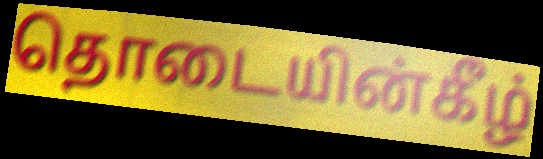
தொடையின்கீழ்